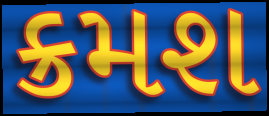
ક્રમશ